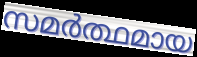
സമർത്ഥമായ